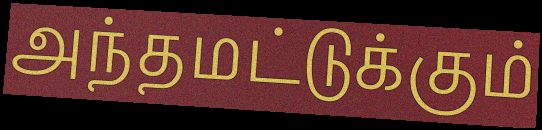
அந்தமட்டுக்கும்